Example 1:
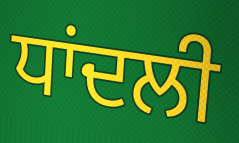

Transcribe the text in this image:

ਧਾਂਦਲੀ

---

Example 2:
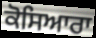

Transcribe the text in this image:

ਕੋਸਿਆਰਾ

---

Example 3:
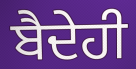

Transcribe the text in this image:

ਬੈਦੇਹੀ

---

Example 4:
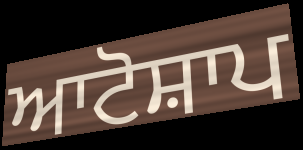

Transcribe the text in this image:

ਆਟੋਸ਼ਾਪ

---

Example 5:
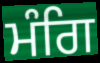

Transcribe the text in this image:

ਮੰਗਿ